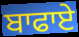
ਬਾਫਾਏ